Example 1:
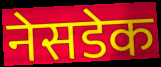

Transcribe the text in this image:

नेसडेक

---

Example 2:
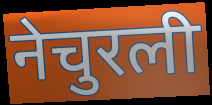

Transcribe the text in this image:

नेचुरली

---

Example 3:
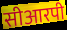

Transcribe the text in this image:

सीआरपी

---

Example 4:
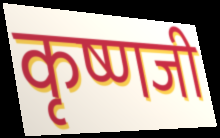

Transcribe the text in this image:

कृष्णजी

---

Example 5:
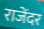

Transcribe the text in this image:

राजेंदर